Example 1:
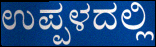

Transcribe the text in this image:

ಉಪ್ಪಳದಲ್ಲಿ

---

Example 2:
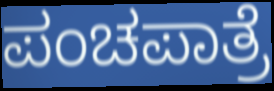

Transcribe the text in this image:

ಪಂಚಪಾತ್ರೆ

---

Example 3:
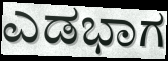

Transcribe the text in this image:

ಎಡಭಾಗ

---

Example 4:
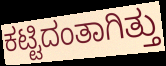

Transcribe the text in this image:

ಕಟ್ಟಿದಂತಾಗಿತ್ತು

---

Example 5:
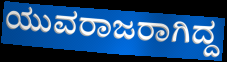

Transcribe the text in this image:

ಯುವರಾಜರಾಗಿದ್ದ